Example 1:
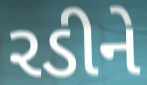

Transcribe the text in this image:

રડીને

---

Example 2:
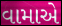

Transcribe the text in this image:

વામાએ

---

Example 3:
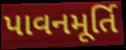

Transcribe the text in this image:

પાવનમૂર્તિ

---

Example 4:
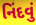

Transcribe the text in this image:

નિંદવું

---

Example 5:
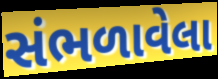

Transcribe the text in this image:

સંભળાવેલા